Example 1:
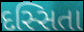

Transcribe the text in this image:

દસ્સિતા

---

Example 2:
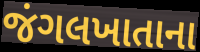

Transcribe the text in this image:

જંગલખાતાના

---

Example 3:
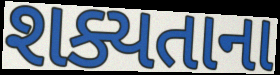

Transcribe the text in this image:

શક્યતાના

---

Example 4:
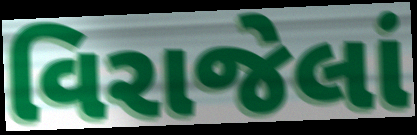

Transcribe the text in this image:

વિરાજેલાં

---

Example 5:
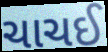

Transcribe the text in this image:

ચાચઈ